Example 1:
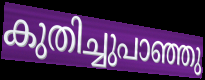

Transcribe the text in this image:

കുതിച്ചുപാഞ്ഞു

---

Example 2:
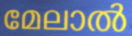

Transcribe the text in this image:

മേലാൽ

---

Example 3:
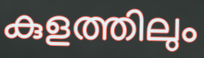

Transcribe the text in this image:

കുളത്തിലും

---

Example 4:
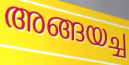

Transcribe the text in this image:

അങ്ങയച്ച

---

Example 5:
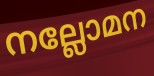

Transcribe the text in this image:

നല്ലോമന